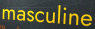
masculine